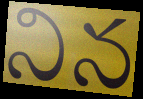
నిన